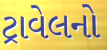
ટ્રાવેલનો